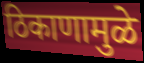
ठिकाणामुळे